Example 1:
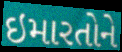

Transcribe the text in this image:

ઇમારતોને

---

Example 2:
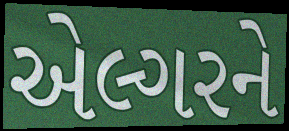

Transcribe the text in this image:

એલ્ગરને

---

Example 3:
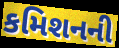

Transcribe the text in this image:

કમિશનની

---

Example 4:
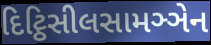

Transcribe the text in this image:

દિટ્ઠિસીલસામઞ્ઞેન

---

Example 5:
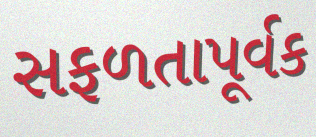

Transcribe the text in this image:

સફળતાપૂર્વક